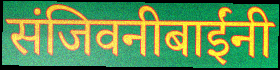
संजिवनीबाईंनी